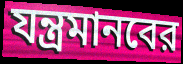
যন্ত্রমানবের